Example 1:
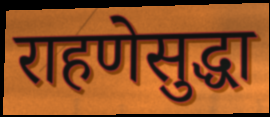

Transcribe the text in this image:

राहणेसुद्धा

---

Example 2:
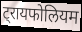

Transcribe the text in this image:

ट्रायफोलियम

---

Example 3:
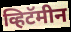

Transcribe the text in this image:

व्हिटॅमीन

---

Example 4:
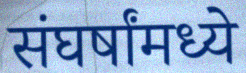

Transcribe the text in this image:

संघर्षांमध्ये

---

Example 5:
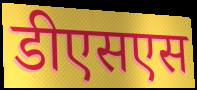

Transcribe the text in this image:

डीएसएस